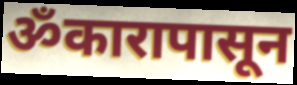
ॐकारापासून